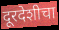
दूरदेशीचा